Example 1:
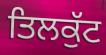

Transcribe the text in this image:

ਤਿਲਕੁੱਟ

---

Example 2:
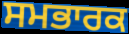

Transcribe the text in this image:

ਸਮਭਾਰਕ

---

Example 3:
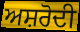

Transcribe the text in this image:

ਅਸ਼ਰੋਦੀ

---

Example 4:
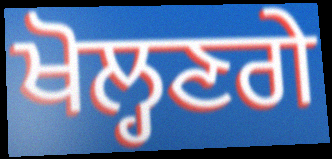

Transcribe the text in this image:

ਖੋਲ੍ਹਣਗੇ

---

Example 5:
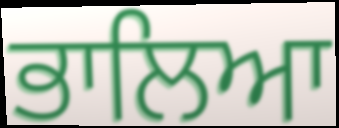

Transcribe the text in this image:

ਭਾਲਿਆ